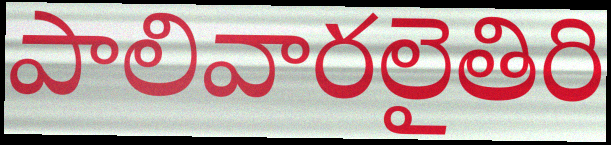
పాలివారలైతిరి